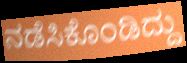
ನಡೆಸಿಕೊಂಡಿದ್ದು